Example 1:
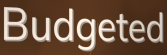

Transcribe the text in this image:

Budgeted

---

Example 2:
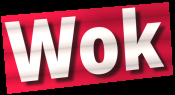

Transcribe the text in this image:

Wok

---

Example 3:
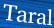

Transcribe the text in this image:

Taral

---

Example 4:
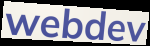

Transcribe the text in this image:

webdev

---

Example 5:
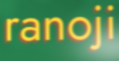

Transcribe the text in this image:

ranoji